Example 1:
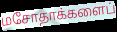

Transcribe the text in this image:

மசோதாக்களைப்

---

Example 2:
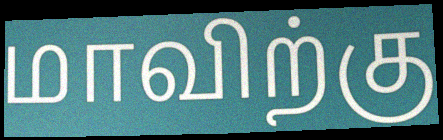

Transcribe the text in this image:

மாவிற்கு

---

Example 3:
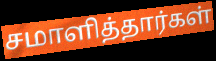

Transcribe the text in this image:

சமாளித்தார்கள்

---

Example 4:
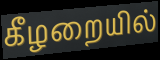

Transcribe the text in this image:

கீழறையில்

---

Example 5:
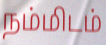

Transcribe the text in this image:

நம்மிடம்